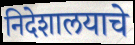
निदेशालयाचे